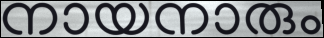
നായനാരും